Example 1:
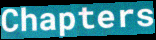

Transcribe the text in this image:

Chapters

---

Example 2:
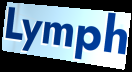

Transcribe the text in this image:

Lymph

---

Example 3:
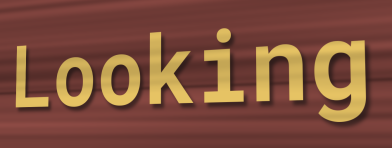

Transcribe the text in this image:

Looking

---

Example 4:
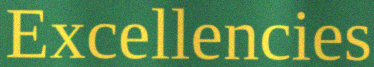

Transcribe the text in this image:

Excellencies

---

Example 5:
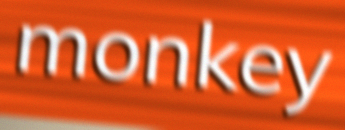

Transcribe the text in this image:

monkey